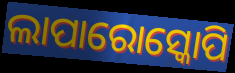
ଲାପାରୋସ୍କୋପି